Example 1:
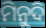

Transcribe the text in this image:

ମିନୁଦି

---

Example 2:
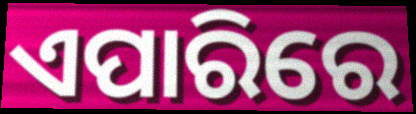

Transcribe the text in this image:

ଏପାରିରେ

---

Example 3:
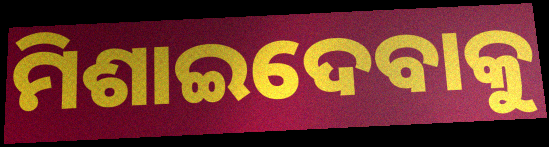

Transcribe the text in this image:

ମିଶାଇଦେବାକୁ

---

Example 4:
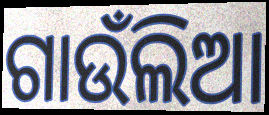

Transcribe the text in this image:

ଗାଉଁଲିଆ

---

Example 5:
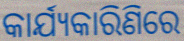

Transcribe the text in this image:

କାର୍ଯ୍ୟକାରିଣିରେ